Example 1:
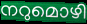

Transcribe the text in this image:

നറുമൊഴി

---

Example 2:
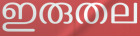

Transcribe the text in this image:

ഇരുതല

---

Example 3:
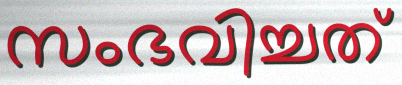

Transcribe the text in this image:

സംഭവിച്ചത്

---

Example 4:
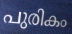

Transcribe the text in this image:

പുരികം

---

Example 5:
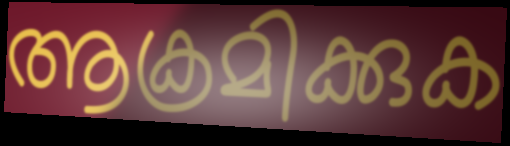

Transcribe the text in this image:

ആക്രമിക്കുക